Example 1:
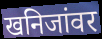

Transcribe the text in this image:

खनिजांवर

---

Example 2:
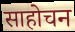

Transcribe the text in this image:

साहोचन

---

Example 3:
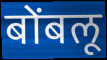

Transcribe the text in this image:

बोंबलू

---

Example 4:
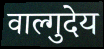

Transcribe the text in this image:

वाल्गुदेय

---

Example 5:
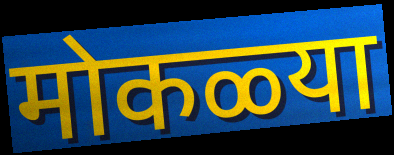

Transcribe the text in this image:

मोकळ्या